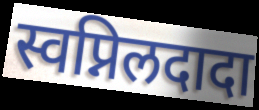
स्वप्निलदादा